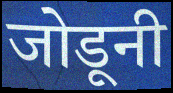
जोडूनी